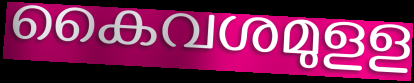
കൈവശമുളള